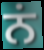
ਨਂ